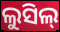
ଲୁସିଲ୍